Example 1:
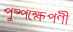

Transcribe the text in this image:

পুষ্পক্ষেপণী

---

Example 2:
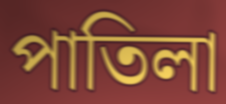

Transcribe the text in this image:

পাতিলা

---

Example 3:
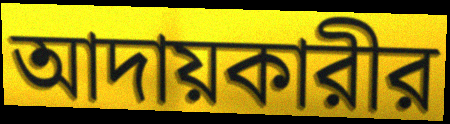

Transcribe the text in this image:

আদায়কারীর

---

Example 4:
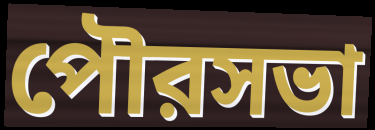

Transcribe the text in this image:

পৌরসভা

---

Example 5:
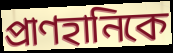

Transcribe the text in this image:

প্রাণহানিকে